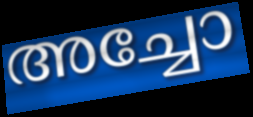
അച്ചോ